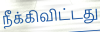
நீக்கிவிட்டது